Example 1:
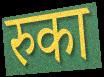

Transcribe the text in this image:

रुका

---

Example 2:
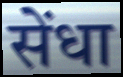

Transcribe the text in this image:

सेंधा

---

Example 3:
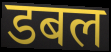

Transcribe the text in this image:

डबल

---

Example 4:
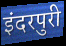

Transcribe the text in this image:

इंदरपुरी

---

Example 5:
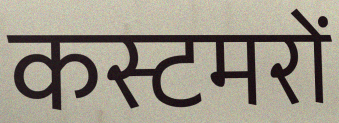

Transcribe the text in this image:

कस्टमरों